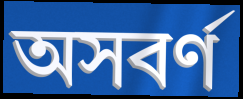
অসবর্ণ